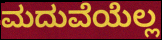
ಮದುವೆಯೆಲ್ಲ